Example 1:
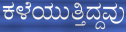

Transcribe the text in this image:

ಕಳೆಯುತ್ತಿದ್ದವು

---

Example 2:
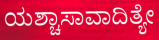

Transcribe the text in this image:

ಯಶ್ಚಾಸಾವಾದಿತ್ಯೇ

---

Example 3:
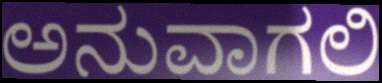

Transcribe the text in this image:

ಅನುವಾಗಲಿ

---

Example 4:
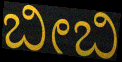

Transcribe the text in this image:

ಬೀಬಿ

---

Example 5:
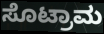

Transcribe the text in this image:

ಸೊಟ್ರಾಮ